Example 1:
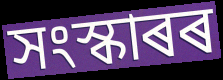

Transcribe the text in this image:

সংস্কাৰৰ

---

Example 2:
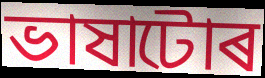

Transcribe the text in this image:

ভাষাটোৰ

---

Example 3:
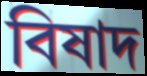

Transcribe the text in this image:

বিষাদ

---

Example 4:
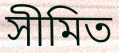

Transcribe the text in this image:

সীমিত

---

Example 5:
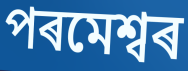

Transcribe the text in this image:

পৰমেশ্বৰ